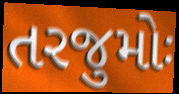
તરજુમોઃ